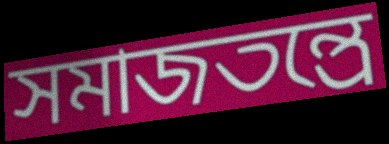
সমাজতন্ত্রে